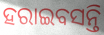
ହରାଇବସନ୍ତି